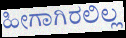
ಹೀಗಾಗಿರಲಿಲ್ಲ